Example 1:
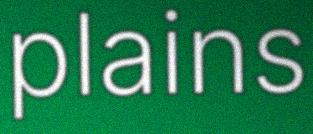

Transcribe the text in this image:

plains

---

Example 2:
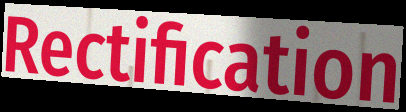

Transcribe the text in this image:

Rectification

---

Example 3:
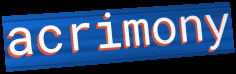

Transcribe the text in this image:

acrimony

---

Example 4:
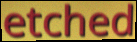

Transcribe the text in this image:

etched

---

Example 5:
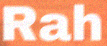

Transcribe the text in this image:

Rah